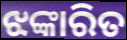
ଝଙ୍କାରିତ